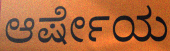
ಆರ್ಷೇಯ